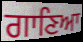
ਗਾਣਿਆ